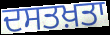
ਦਸਤਖ਼ਤਾ